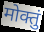
मोक्तुं